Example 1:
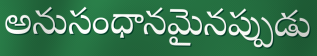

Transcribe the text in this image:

అనుసంధానమైనప్పుడు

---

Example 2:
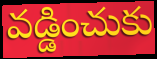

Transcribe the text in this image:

వడ్డించుకు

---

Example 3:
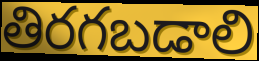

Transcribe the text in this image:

తిరగబడాలి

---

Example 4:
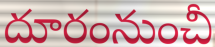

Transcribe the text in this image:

దూరంనుంచీ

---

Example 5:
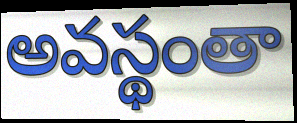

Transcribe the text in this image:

అవస్థంతా